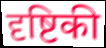
दृष्टिकी